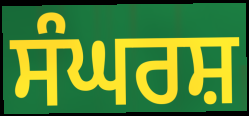
ਸੰਘਰਸ਼